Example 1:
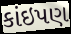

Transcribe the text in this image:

કાંઇપણ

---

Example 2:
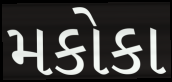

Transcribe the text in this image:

મકોકા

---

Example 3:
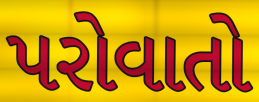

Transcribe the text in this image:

પરોવાતો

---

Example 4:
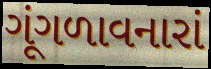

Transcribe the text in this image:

ગૂંગળાવનારાં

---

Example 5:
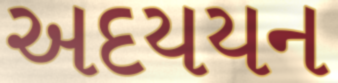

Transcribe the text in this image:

અદયયન